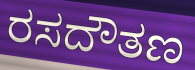
ರಸದೌತಣ